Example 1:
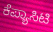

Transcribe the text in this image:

ಕೆಪ್ಯಾಸಿಟಿ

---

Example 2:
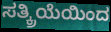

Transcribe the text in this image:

ಸತ್ಕ್ರಿಯೆಯಿಂದ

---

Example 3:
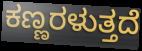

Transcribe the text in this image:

ಕಣ್ಣರಳುತ್ತದೆ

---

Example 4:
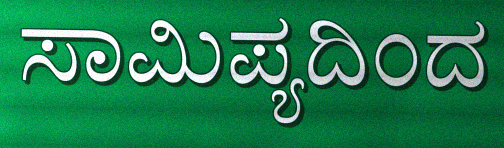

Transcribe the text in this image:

ಸಾಮಿಪ್ಯದಿಂದ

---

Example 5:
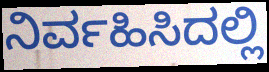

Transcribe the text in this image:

ನಿರ್ವಹಿಸಿದಲ್ಲಿ